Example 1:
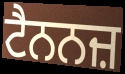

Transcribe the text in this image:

ਟੈਨਨਜ਼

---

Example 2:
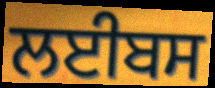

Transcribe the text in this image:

ਲਈਬਸ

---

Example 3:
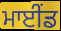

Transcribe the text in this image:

ਮਾਈਂਡ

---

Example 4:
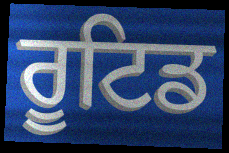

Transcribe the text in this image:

ਰੂਟਿਡ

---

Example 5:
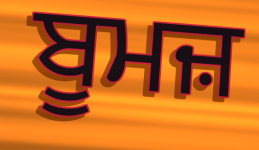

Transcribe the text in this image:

ਬੂਮਜ਼